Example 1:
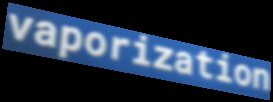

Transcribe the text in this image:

vaporization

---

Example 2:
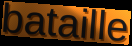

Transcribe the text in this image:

bataille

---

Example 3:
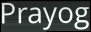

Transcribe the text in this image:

Prayog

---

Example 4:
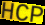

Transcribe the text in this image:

HCP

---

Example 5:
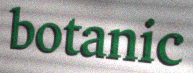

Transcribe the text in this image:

botanic